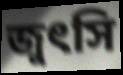
জুৎসি